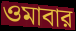
ওমাবার